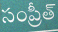
సంప్రీత్